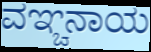
ವಞ್ಚನಾಯ